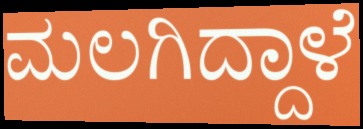
ಮಲಗಿದ್ದಾಳೆ